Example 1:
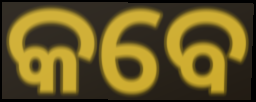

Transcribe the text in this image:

କବେ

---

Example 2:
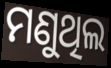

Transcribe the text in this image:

ମଣୁଥିଲ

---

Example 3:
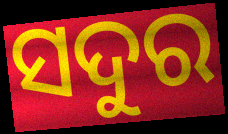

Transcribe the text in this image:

ସଦୁର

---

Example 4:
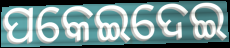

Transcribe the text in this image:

ପକେଇଦେଇ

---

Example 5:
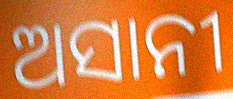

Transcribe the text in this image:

ଅସାନୀ